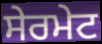
ਸੇਰਮੇਟ